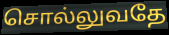
சொல்லுவதே